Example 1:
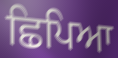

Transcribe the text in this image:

ਛਿਪਿਆ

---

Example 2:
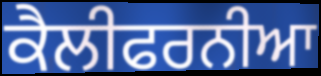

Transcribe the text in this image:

ਕੈਲੀਫਰਨੀਆ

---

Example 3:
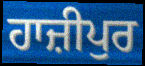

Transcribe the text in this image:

ਹਾਜ਼ੀਪੁਰ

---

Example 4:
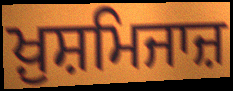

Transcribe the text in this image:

ਖ਼ੁਸ਼ਮਿਜਾਜ਼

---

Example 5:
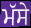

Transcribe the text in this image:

ਮੱਸੇ